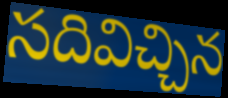
సదివిచ్చిన